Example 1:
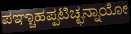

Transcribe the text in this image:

ಪಞ್ಚಾಹಪ್ಪಟಿಚ್ಛನ್ನಾಯೋ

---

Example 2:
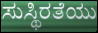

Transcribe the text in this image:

ಸುಸ್ಥಿರತೆಯು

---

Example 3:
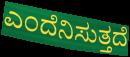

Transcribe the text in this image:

ಎಂದೆನಿಸುತ್ತದೆ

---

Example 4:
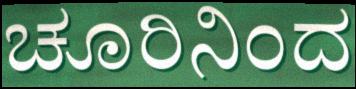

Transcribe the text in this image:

ಚೂರಿನಿಂದ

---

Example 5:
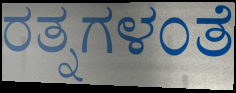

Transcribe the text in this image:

ರತ್ನಗಳಂತೆ